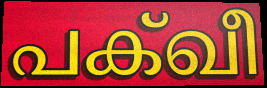
പക്ഖീ